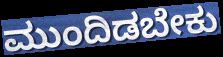
ಮುಂದಿಡಬೇಕು